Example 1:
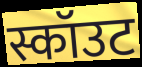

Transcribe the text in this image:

स्कॉउट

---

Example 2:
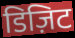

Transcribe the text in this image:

डिज़िट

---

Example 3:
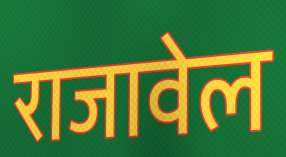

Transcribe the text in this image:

राजावेल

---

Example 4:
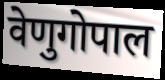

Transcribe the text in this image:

वेणुगोपाल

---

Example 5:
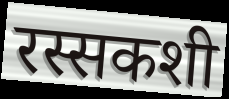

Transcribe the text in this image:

रस्सकशी